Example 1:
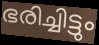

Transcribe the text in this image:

ഭരിച്ചിട്ടും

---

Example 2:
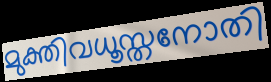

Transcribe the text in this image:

മുക്തിവധൂസ്തനോതി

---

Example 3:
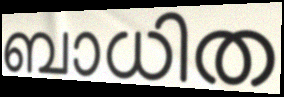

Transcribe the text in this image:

ബാധിത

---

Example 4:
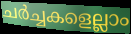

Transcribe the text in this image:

ചർച്ചകളെല്ലാം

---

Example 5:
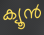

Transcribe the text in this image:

ക്യൂൻ